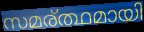
സമര്ത്ഥമായി